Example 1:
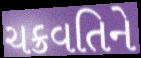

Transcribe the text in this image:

ચક્રવતિને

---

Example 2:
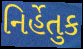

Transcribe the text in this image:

નિર્હેતુક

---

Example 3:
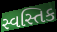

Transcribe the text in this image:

સ્વસ્તિક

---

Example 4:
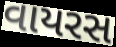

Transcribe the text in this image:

વાયરસ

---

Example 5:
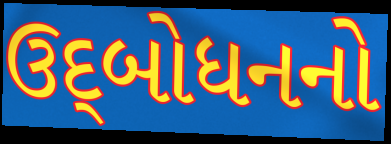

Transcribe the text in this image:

ઉદ્‌બોધનનો